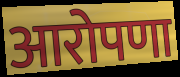
आरोपणा